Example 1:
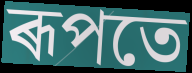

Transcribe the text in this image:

ৰূপতে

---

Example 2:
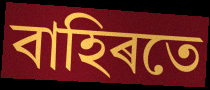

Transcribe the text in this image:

বাহিৰতে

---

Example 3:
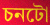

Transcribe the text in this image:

চনটো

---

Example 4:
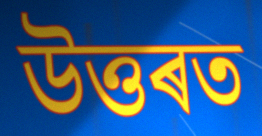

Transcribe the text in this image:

উত্তৰত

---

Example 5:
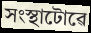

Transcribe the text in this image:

সংস্থাটোৱে